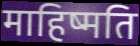
माहिष्मति